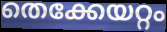
തെക്കേയറ്റം